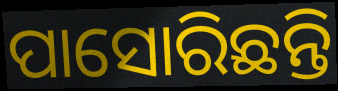
ପାସୋରିଛନ୍ତି